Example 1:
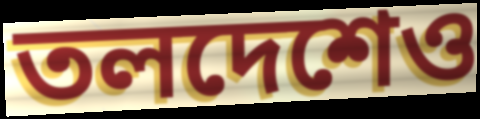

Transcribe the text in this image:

তলদেশেও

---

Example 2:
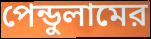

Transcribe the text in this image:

পেন্ডুলামের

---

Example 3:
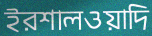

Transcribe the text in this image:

ইরশালওয়াদি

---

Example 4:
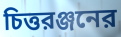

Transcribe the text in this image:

চিত্তরঞ্জনের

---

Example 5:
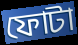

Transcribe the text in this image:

ফোটা